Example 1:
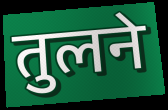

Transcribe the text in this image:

तुलने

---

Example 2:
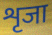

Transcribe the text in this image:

शृजा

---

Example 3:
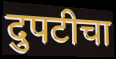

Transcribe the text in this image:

दुपटीचा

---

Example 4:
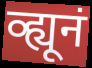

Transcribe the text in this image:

व्ह्यूनं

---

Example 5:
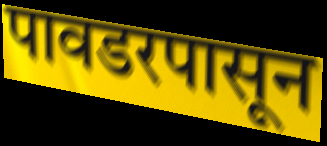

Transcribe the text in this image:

पावडरपासून